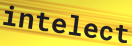
intelect